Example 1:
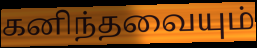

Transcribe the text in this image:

கனிந்தவையும்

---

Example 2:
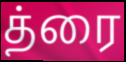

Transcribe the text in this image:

த்ரை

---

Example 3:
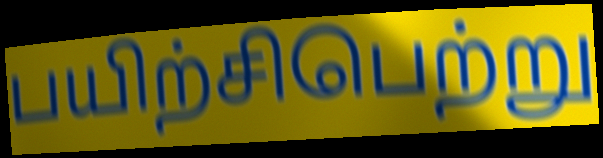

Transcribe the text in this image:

பயிற்சிபெற்று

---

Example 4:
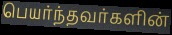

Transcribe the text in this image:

பெயர்ந்தவர்களின்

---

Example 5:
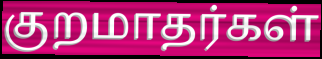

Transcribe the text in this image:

குறமாதர்கள்